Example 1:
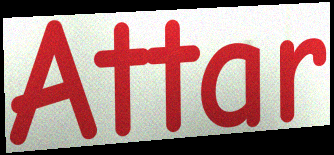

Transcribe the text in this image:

Attar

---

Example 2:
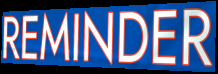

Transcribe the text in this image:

REMINDER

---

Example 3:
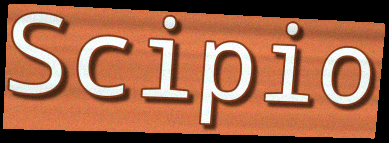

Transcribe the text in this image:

Scipio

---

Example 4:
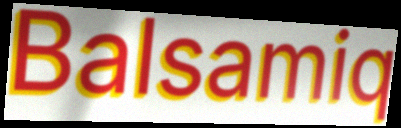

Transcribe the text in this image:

Balsamiq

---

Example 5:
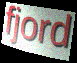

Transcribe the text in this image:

fjord